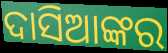
ଦାସିଆଙ୍କର